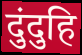
दुंदुहि